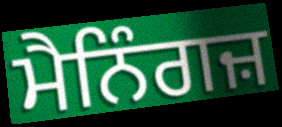
ਮੈਨਿੰਗਜ਼